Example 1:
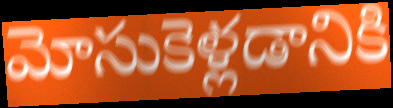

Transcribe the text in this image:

మోసుకెళ్లడానికి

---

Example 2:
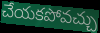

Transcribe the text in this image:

చేయకపోవచ్చు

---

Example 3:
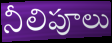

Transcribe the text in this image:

నీలిపూలు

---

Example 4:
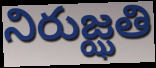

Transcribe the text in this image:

నిరుజ్ఝతి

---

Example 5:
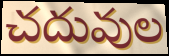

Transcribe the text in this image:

చదువుల